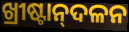
ଖ୍ରୀଷ୍ଟାନ୍‌ଦଳନ